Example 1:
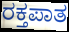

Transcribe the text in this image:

ರಕ್ತಪಾತ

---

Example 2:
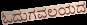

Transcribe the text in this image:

ಓದುಗವಲಯದ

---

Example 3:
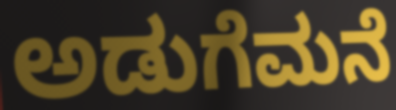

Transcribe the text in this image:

ಅಡುಗೆಮನೆ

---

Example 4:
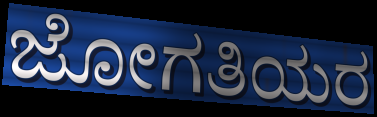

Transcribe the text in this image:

ಜೋಗತಿಯರ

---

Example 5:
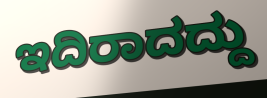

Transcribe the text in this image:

ಇದಿರಾದದ್ದು